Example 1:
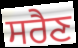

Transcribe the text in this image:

ਸਰੈਣ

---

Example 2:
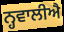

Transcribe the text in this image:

ਨ੍ਹਵਾਲੀਐ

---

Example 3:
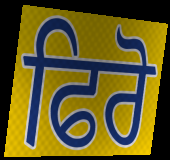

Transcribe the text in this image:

ਫਿਰੋ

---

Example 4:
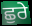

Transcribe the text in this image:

ਛੁਰੇ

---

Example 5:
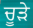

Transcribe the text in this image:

ਚੂੜੇ